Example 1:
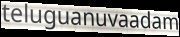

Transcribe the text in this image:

teluguanuvaadam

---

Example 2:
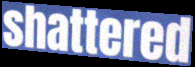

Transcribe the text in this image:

shattered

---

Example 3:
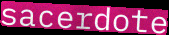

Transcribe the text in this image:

sacerdote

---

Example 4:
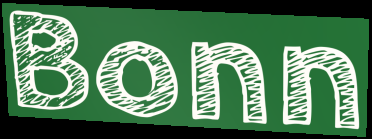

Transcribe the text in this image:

Bonn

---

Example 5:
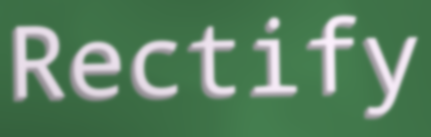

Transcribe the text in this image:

Rectify